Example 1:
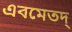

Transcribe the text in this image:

এবমেতদ্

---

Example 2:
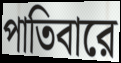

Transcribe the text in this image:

পাতিবারে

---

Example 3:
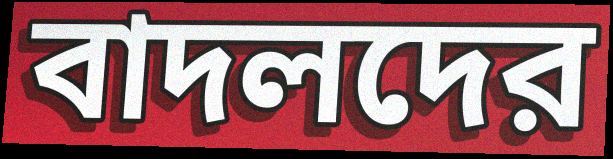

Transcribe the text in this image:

বাদলদের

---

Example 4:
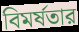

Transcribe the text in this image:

বিমর্ষতার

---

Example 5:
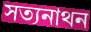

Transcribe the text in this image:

সত্যনাথন